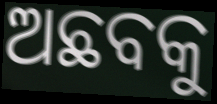
ଅଛବକୁ